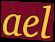
ael